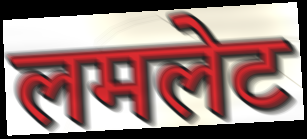
लमलेट